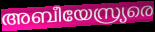
അബീയേസ്ര്യരെ